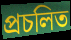
প্ৰচলিত